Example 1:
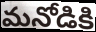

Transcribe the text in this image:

మనోడికి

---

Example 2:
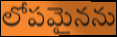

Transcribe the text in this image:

లోపమైనను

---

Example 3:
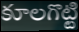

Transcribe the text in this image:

కూలగొట్టి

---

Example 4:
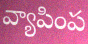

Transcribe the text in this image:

వ్యాపింప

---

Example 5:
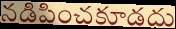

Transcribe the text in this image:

నడిపించకూడదు